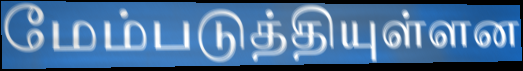
மேம்படுத்தியுள்ளன